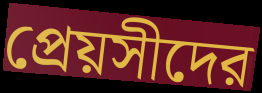
প্রেয়সীদের